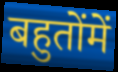
बहुतोंमें